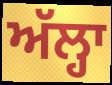
ਅੱਲ੍ਹਾ